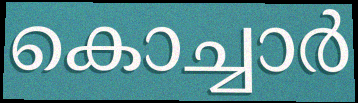
കൊച്ചാർ